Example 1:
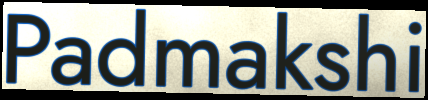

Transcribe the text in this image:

Padmakshi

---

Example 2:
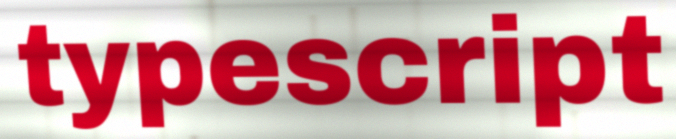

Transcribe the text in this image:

typescript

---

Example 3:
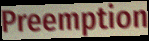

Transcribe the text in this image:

Preemption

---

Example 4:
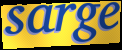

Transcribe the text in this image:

sarge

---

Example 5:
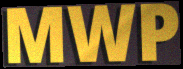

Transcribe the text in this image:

MWP